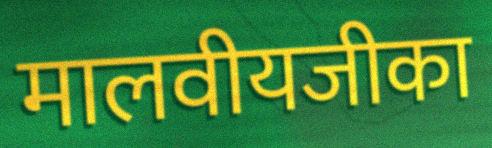
मालवीयजीका